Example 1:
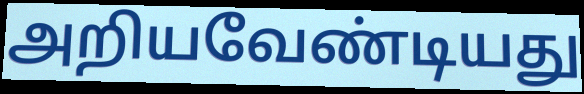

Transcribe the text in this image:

அறியவேண்டியது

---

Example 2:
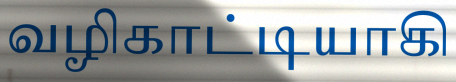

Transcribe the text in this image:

வழிகாட்டியாகி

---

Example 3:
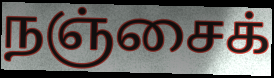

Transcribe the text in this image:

நஞ்சைக்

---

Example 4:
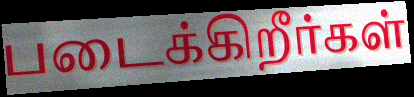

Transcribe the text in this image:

படைக்கிறீர்கள்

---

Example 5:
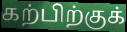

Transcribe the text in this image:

கற்பிற்குக்